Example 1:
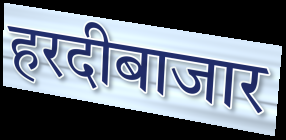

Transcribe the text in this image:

हरदीबाजार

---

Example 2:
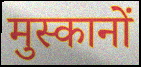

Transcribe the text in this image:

मुस्कानों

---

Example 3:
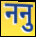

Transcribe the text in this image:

ननु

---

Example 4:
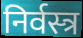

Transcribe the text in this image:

निर्वस्‍त्र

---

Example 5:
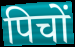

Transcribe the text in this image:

पिचों